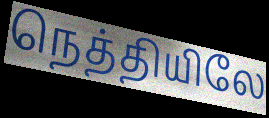
நெத்தியிலே